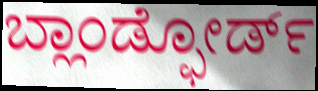
ಬ್ಲಾಂಡ್ಫೋರ್ಡ್